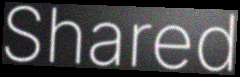
Shared